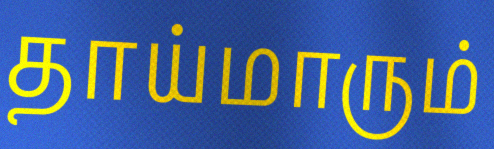
தாய்மாரும்